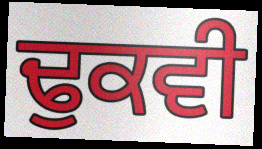
ਢੁਕਵੀ